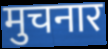
मुचनार